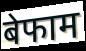
बेफाम